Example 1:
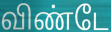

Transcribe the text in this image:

விண்டே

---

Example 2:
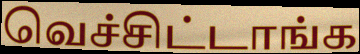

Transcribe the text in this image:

வெச்சிட்டாங்க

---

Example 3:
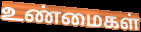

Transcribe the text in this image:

உண்மைகள்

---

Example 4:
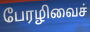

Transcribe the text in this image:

பேரழிவைச்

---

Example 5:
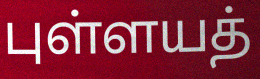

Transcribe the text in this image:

புள்ளயத்